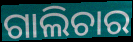
ଗାଲିଚାର